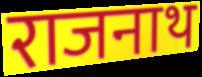
राजनाथ